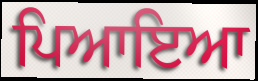
ਪਿਆਇਆ